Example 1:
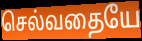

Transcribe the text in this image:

செல்வதையே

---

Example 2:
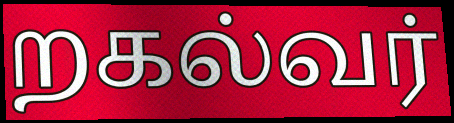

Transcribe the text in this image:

றகல்வர்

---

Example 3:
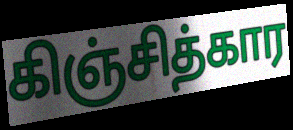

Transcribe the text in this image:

கிஞ்சித்கார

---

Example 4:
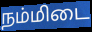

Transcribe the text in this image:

நம்மிடை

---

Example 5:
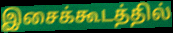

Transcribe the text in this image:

இசைக்கூடத்தில்